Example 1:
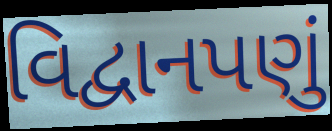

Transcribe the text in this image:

વિદ્વાનપણું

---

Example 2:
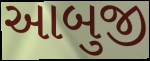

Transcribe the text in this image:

આબુજી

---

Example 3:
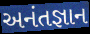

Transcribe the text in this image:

અનંતજ્ઞાન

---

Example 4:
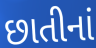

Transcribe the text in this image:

છાતીનાં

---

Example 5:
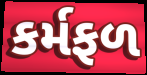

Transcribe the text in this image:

કર્મફળ